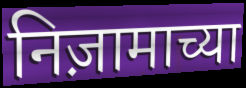
निज़ामाच्या